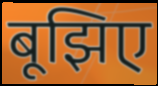
बूझिए